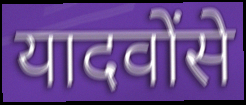
यादवोंसे